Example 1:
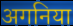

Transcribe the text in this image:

अगनिया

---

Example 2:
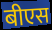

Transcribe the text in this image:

बीएस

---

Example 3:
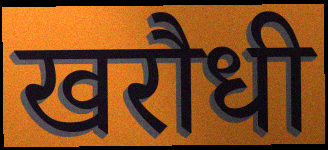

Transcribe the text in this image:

खरौधी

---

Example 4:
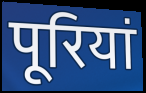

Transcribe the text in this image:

पूरियां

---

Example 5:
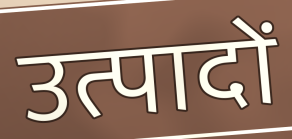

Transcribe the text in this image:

उत्पादों